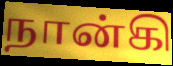
நான்கி